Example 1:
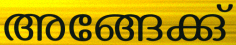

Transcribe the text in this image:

അങ്ങേക്കു്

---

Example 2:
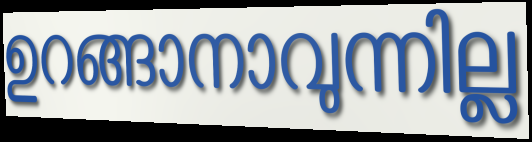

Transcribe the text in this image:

ഉറങ്ങാനാവുന്നില്ല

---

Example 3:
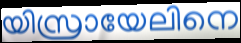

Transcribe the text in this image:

യിസ്രായേലിനെ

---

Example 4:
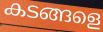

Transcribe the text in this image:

കടങ്ങളെ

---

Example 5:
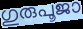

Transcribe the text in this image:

ഗുരുപൂജാ